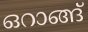
ഒറാങ്ങ്